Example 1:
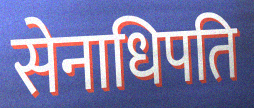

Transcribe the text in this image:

सेनाधिपति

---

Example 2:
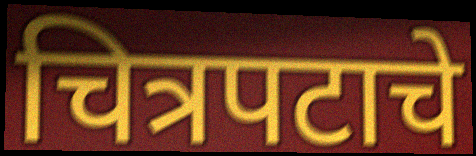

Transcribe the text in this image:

चित्रपटाचे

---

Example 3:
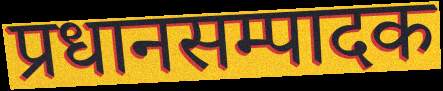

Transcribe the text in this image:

प्रधानसम्पादक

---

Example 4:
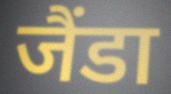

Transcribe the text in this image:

जैंडा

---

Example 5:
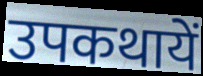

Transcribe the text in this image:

उपकथायें